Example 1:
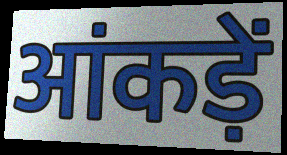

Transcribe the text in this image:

आंकड़ें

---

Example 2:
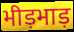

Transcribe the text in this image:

भीड़भाड़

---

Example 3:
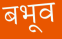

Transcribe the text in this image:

बभूव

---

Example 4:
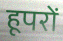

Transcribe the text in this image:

हूपरों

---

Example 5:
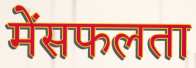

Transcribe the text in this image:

मेंसफलता